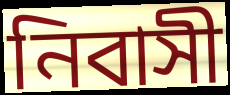
নিবাসী